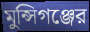
মুন্সিগঞ্জের